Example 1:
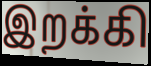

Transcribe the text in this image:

இறக்கி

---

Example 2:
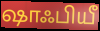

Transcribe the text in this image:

ஷாஃபியீ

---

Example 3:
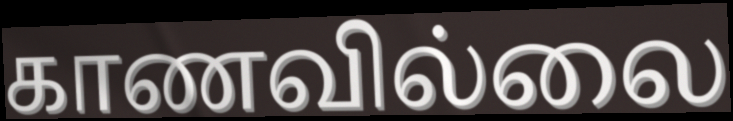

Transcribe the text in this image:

காணவில்லை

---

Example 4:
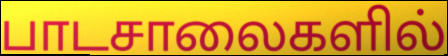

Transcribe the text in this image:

பாடசாலைகளில்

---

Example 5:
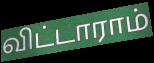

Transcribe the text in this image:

விட்டாராம்